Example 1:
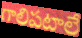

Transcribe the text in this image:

గాలిపటాలే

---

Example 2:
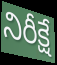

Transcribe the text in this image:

నిరీక్షే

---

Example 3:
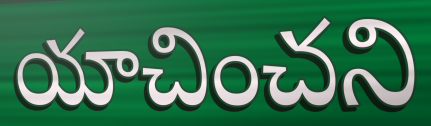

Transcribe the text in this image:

యాచించని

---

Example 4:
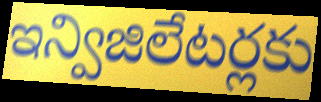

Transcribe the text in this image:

ఇన్విజిలేటర్లకు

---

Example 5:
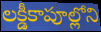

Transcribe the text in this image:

లక్డీకాపూల్లోని